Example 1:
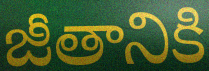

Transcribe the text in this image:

జీతానికి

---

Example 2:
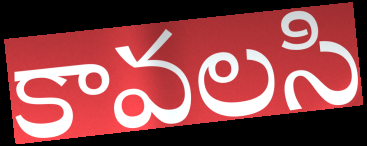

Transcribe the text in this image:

కావలసి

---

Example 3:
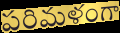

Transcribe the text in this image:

పరిమళంగా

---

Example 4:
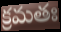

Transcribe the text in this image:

క్రమతః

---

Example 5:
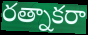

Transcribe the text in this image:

రత్నాకరా